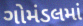
ગોમંડલમાં